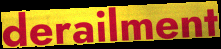
derailment